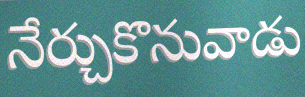
నేర్చుకొనువాడు